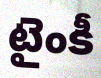
టైంకీ